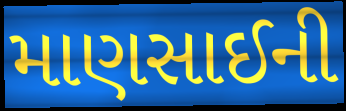
માણસાઈની